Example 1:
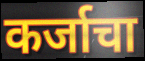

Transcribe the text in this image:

कर्जाचा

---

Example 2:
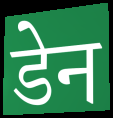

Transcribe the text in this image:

डेन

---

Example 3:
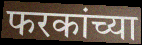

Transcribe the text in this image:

फरकांच्या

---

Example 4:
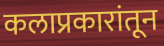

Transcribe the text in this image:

कलाप्रकारांतून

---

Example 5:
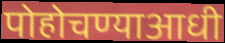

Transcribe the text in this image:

पोहोचण्याआधी